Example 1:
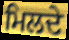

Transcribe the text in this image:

ਮਿਲਦੇ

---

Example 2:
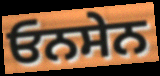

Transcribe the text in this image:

ਓਨਸੇਨ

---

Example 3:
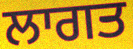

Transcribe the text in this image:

ਲਾਗਤ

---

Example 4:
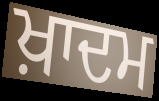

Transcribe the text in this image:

ਖ਼ਾਦਮ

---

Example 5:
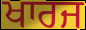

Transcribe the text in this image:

ਖਾਰਜ